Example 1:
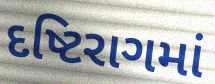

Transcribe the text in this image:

દષ્ટિરાગમાં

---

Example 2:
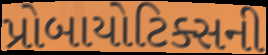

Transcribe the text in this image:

પ્રોબાયોટિક્સની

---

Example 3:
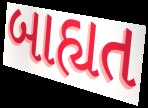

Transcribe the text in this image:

બાહ્યત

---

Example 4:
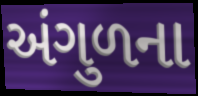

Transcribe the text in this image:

અંગુળના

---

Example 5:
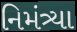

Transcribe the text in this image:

નિમંત્ર્યા